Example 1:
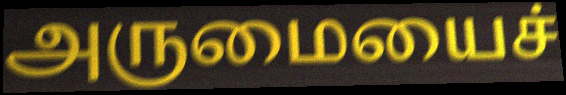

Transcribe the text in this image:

அருமையைச்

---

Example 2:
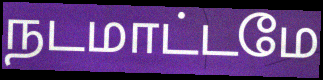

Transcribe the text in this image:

நடமாட்டமே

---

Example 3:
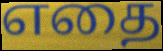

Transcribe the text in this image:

எதை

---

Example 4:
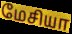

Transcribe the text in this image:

மேசியா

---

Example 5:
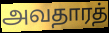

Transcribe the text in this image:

அவதாரத்